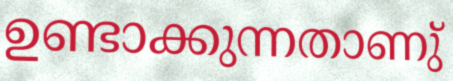
ഉണ്ടാക്കുന്നതാണു്